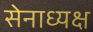
सेनाध्यक्ष